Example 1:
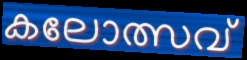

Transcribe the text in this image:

കലോത്സവ്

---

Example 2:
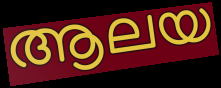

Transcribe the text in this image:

ആലയ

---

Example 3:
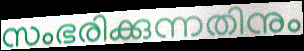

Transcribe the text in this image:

സംഭരിക്കുന്നതിനും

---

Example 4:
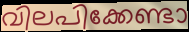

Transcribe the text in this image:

വിലപിക്കേണ്ടാ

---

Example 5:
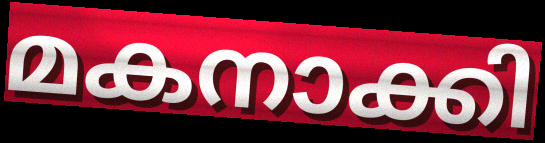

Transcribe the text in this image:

മകനാക്കി